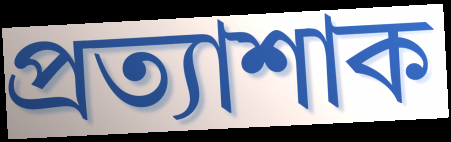
প্ৰত্যাশাক